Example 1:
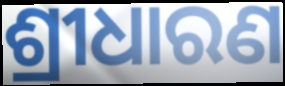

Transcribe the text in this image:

ଶ୍ରୀଧାରଣ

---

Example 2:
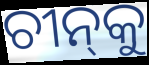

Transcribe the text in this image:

ଚୀନ୍‌କୁ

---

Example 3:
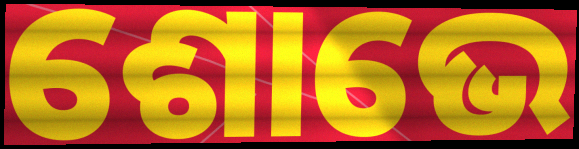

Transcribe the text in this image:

ଶୋଭେ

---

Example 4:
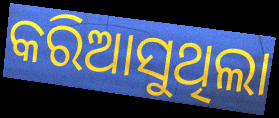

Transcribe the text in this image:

କରିଆସୁଥିଲା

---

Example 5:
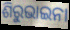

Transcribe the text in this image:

ଶିରୁଭାଇନା